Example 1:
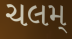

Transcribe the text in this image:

ચલમ્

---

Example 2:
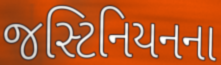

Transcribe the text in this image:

જસ્ટિનિયનના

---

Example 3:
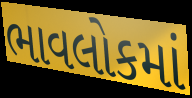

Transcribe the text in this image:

ભાવલોકમાં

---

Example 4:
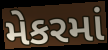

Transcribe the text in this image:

મેકરમાં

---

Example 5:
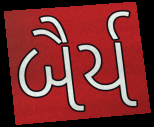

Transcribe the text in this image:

બૈર્ય